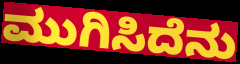
ಮುಗಿಸಿದೆನು